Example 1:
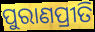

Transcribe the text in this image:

ପୁରାଣପ୍ରୀତି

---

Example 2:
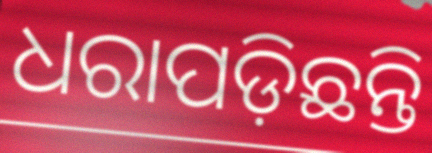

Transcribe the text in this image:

ଧରାପଡ଼ିଛନ୍ତି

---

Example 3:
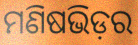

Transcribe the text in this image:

ମଣିଷଭିଡ଼ର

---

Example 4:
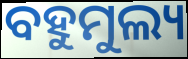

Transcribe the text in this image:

ବହୁମୁଲ୍ୟ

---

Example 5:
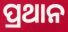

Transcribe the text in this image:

ପ୍ରଥାନ